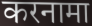
करनामा